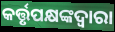
କର୍ତ୍ତୃପକ୍ଷଙ୍କଦ୍ଵାରା